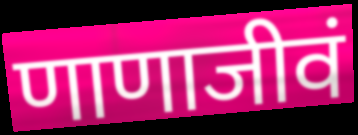
णाणाजीवं